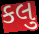
કલુ